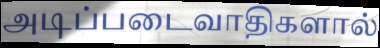
அடிப்படைவாதிகளால்